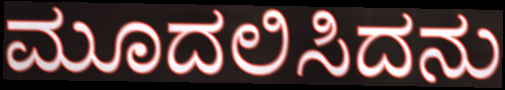
ಮೂದಲಿಸಿದನು